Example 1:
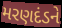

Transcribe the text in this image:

મરણદંડને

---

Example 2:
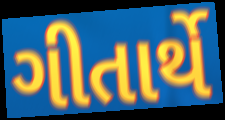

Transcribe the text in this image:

ગીતાર્થે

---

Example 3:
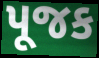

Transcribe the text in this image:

પૂજક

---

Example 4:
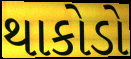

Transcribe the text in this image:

થાકોડો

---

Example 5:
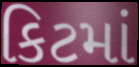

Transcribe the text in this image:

કિટમાં